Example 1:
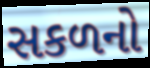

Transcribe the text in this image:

સકળનો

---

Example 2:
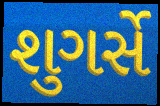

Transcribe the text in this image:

શુગર્સે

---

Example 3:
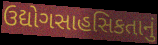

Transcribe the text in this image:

ઉદ્યોગસાહસિકતાનું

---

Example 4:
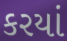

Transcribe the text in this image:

કરયાં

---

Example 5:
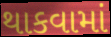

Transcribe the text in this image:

થાકવામાં